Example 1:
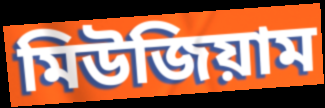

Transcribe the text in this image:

মিউজিয়াম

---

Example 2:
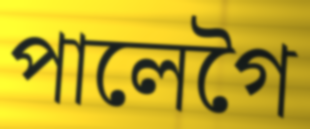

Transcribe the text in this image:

পালেগৈ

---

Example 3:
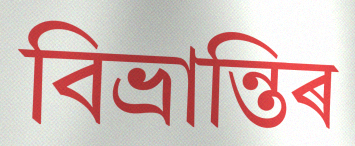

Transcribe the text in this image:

বিভ্ৰান্তিৰ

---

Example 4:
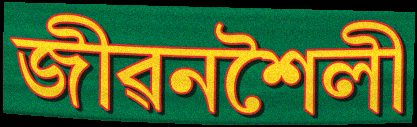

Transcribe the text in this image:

জীৱনশৈলী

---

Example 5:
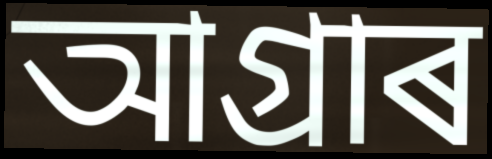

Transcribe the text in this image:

আগ্ৰাৰ